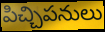
పిచ్చిపనులు